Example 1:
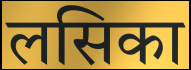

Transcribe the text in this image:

लसिका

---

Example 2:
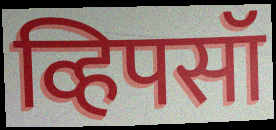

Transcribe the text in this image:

व्हिपसॉ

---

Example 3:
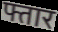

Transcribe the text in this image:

फ्तार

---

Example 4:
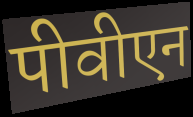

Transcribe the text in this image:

पीवीएन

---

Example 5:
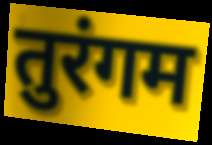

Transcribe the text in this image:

तुरंगम